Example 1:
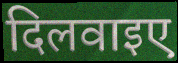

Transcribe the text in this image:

दिलवाइए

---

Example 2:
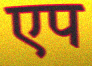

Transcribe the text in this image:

एप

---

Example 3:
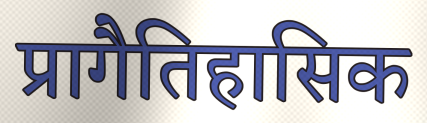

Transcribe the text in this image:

प्रागैतिहासिक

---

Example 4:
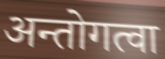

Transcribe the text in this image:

अन्तोगत्वा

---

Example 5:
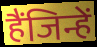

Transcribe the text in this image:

हैंजिन्हें